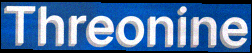
Threonine